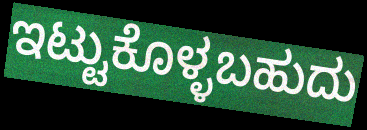
ಇಟ್ಟುಕೊಳ್ಳಬಹುದು